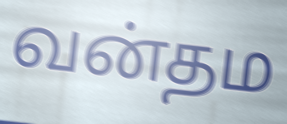
வன்தம